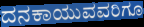
ದನಕಾಯುವವರಿಗೂ